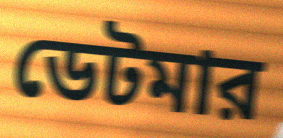
ডেটমার